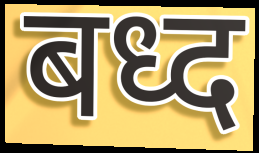
बध्द